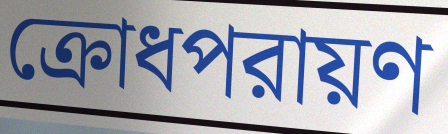
ক্রোধপরায়ণ